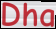
Dha